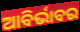
ଆବିର୍ଭାବର